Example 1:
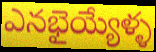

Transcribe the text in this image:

ఎనభైయ్యేళ్ళ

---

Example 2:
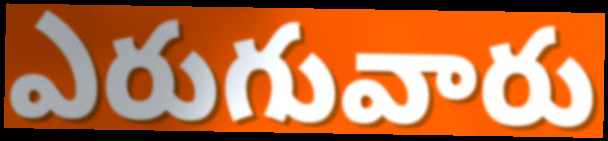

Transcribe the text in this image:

ఎరుగువారు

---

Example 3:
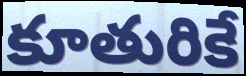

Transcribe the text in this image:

కూతురికే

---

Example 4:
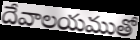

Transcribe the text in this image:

దేవాలయముతో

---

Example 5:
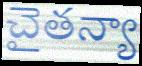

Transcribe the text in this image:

చైతన్యా